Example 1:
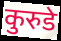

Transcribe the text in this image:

कुरुडे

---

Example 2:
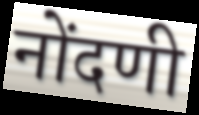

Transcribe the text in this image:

नोंदणी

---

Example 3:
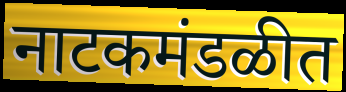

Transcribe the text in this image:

नाटकमंडळीत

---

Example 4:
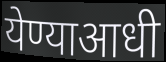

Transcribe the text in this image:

येण्याआधी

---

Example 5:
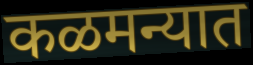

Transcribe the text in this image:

कळमन्यात